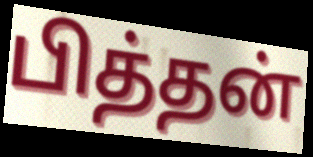
பித்தன்